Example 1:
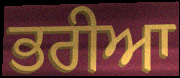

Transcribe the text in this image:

ਭਰੀਆ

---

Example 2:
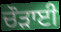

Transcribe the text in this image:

ਚੌੜਾਈ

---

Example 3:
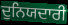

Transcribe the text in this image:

ਦੁਨਿਯਦਾਰੀ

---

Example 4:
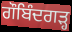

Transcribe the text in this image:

ਗੌਬਿੰਦਗੜ੍ਹ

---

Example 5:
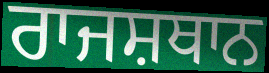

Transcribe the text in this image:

ਰਾਜਸ਼ਥਾਨ